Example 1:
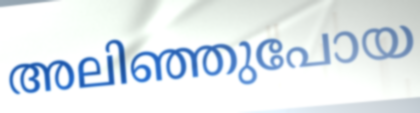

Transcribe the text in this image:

അലിഞ്ഞുപോയ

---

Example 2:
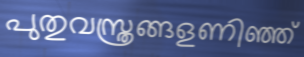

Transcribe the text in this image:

പുതുവസ്ത്രങ്ങളണിഞ്ഞ്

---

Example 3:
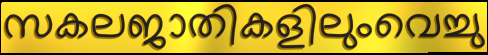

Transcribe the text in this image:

സകലജാതികളിലുംവെച്ചു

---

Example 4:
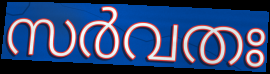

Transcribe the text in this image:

സർവതഃ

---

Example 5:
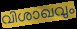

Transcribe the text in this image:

വിശാഖവും